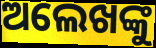
ଅଲେଖଙ୍କୁ